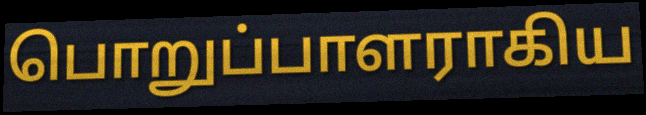
பொறுப்பாளராகிய